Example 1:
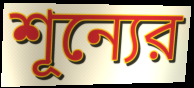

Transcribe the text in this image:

শূন্যের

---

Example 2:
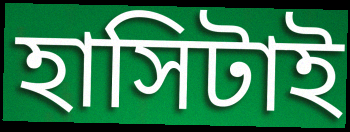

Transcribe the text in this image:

হাসিটাই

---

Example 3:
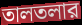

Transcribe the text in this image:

তালতলার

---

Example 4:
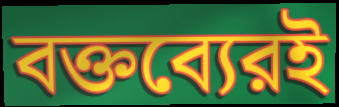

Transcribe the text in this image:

বক্তব্যেরই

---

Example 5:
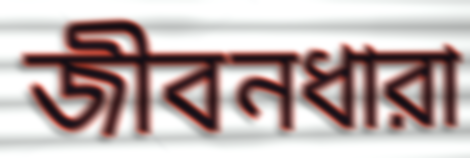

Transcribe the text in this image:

জীবনধারা